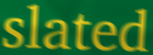
slated